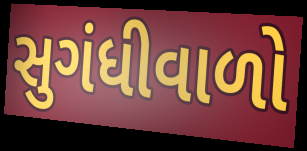
સુગંધીવાળો